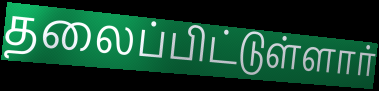
தலைப்பிட்டுள்ளார்